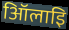
ऑिलाइि